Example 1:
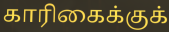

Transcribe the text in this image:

காரிகைக்குக்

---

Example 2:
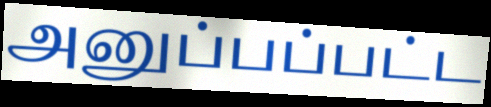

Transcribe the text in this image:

அனுப்பப்பட்ட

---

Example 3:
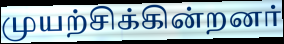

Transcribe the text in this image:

முயற்சிக்கின்றனர்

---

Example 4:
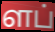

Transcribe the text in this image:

ளப்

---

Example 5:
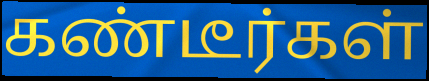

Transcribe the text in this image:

கண்டீர்கள்